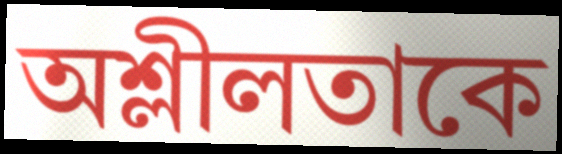
অশ্লীলতাকে